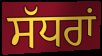
ਸੱਧਰਾਂ